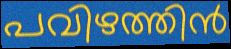
പവിഴത്തിൻ